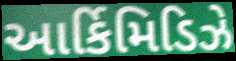
આર્કિમિડિઝે